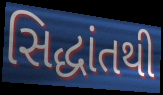
સિદ્ધાંતથી